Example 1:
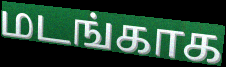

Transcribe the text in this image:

மடங்காக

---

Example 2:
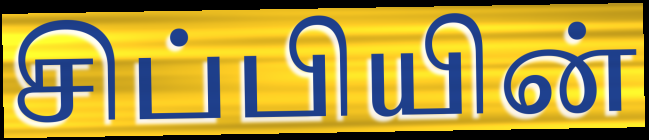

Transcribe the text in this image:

சிப்பியின்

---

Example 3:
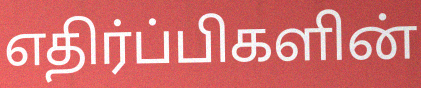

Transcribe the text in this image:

எதிர்ப்பிகளின்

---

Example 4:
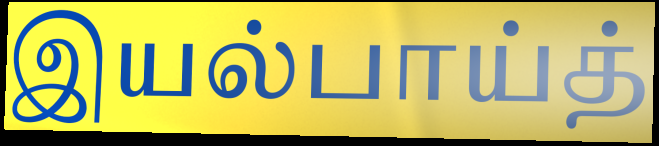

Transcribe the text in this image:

இயல்பாய்த்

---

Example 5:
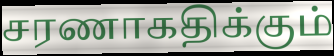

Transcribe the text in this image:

சரணாகதிக்கும்